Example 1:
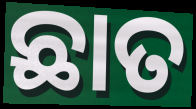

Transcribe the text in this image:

ଛାତ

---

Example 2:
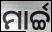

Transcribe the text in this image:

ମାର୍ଚ୍ଚ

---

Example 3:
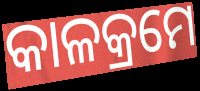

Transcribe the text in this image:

କାଳକ୍ରମେ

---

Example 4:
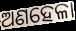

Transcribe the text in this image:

ଅଣହେଳା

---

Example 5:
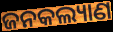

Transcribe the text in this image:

ଜନକଲ୍ୟାଣ